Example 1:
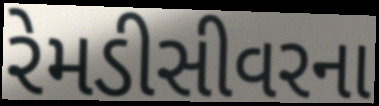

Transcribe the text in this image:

રેમડીસીવરના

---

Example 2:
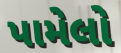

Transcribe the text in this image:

પામેલો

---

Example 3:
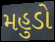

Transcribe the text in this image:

મહુડો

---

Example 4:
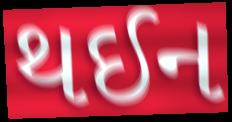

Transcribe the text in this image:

થઈન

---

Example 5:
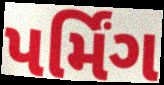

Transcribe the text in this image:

પર્મિંગ